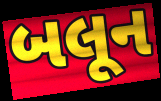
બલૂન